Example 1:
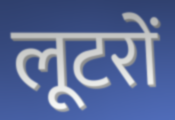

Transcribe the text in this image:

लूटरों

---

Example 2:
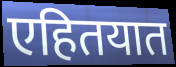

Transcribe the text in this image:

एहितयात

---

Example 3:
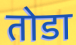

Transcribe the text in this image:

तोडा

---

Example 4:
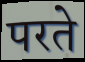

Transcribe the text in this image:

परते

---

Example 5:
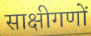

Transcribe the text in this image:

साक्षीगणों